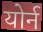
योर्न